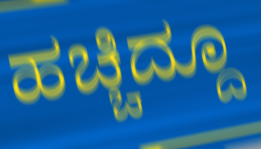
ಹಚ್ಚಿದ್ದೂ